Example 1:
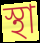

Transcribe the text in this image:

স্থা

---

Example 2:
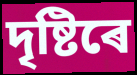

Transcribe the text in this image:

দৃষ্টিৰে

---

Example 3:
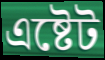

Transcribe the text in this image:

এষ্টেট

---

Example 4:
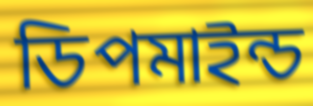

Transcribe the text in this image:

ডিপমাইন্ড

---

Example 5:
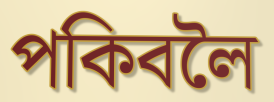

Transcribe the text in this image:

পকিবলৈ